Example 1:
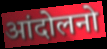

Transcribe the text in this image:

आंदोलनो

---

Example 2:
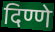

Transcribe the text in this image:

दिण्णे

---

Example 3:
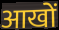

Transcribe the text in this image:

आखों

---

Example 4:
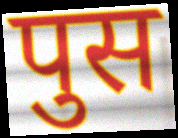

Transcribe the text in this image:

पुस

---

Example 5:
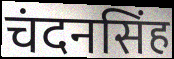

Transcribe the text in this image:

चंदनसिंह